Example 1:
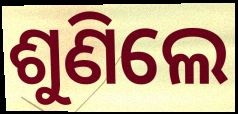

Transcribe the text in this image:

ଶୁଣିଲେ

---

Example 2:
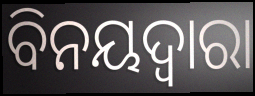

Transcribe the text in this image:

ବିନୟଦ୍ୱାରା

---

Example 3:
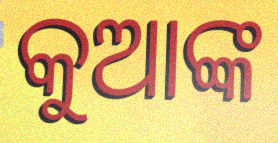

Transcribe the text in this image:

କୁଆଙ୍କ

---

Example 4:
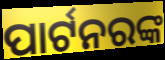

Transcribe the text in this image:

ପାର୍ଟନରଙ୍କ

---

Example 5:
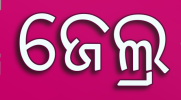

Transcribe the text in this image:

ଜେଲ୍ର